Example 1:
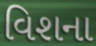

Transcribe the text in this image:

વિશના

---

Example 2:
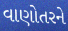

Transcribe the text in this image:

વાણોતરને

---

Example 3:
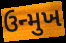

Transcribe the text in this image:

ઉન્મુખ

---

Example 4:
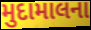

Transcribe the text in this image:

મુદામાલના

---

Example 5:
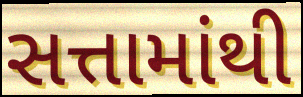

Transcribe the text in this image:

સત્તામાંથી